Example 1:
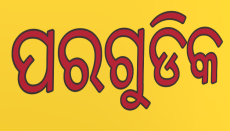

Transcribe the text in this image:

ପରଗୁଡିକ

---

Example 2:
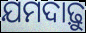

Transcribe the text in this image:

ଯମଦାଢ଼ୁ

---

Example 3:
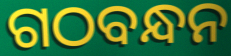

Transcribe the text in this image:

ଗଠବନ୍ଧନ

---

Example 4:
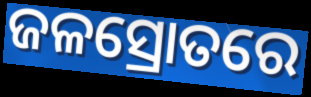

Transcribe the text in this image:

ଜଳସ୍ରୋତରେ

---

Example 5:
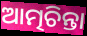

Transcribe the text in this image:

ଆତ୍ମଚିନ୍ତା